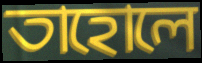
তাহোলে